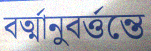
বর্ত্মানুবর্ত্তন্তে